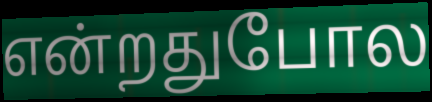
என்றதுபோல